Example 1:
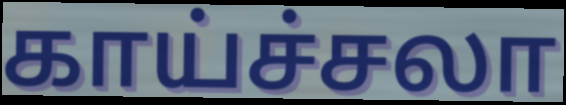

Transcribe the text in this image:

காய்ச்சலா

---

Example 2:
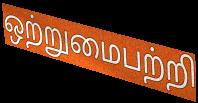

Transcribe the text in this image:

ஒற்றுமைபற்றி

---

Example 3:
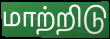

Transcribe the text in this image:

மாற்றிடு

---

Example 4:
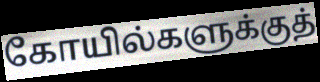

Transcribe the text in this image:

கோயில்களுக்குத்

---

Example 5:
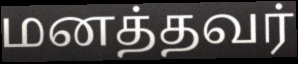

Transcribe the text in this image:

மனத்தவர்